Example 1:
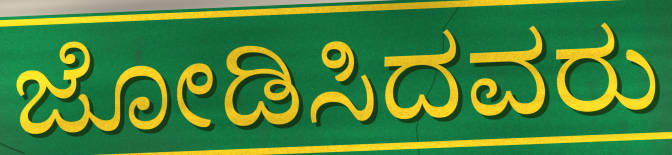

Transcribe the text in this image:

ಜೋಡಿಸಿದವರು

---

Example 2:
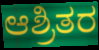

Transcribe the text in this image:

ಆಶ್ರಿತರ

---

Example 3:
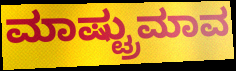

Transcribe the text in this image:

ಮಾಷ್ಟ್ರುಮಾವ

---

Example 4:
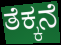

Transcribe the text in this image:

ತೆಕ್ಕನೆ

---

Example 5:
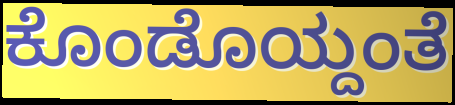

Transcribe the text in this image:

ಕೊಂಡೊಯ್ದಂತೆ